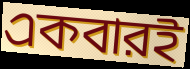
একবারই